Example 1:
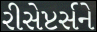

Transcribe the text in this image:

રીસેપ્ટર્સને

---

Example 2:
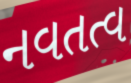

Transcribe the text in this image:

નવતત્વ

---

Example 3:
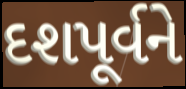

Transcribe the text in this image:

દશપૂર્વને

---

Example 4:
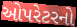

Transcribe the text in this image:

ઓપરેટરનો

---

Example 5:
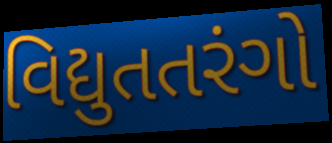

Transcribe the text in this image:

વિદ્યુતતરંગો